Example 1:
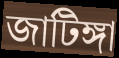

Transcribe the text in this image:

জাটিঙ্গা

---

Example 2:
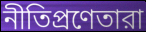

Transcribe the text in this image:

নীতিপ্রণেতারা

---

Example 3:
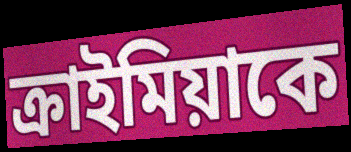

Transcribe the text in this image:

ক্রাইমিয়াকে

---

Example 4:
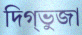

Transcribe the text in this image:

দিগ্ভুজা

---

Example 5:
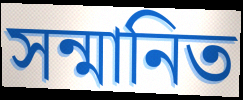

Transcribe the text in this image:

সন্মানিত